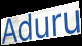
Aduru